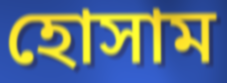
হোসাম